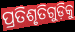
ପ୍ରତିଶୃତିଗୁଡ଼ିକୁ